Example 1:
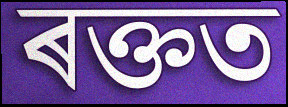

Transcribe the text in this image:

ৰক্তত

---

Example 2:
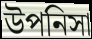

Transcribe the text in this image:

উপনিসা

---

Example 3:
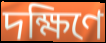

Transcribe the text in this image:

দক্ষিণে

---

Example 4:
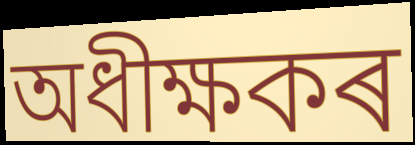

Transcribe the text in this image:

অধীক্ষকৰ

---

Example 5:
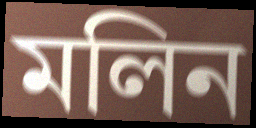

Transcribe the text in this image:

মলিন